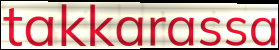
takkarassa